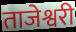
ताजेश्वरी